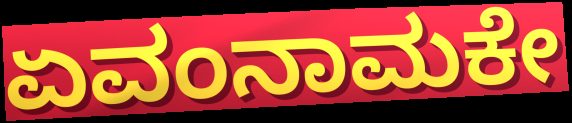
ಏವಂನಾಮಕೇ